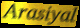
Arasiyal